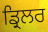
ਡ੍ਰਿਲਰ